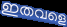
ഇതവളെ